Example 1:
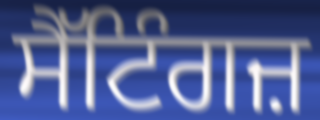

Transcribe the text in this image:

ਸੈੱਟਿੰਗਜ਼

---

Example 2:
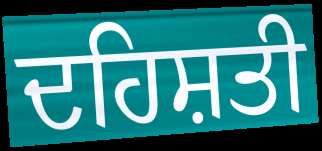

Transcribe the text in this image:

ਦਹਿਸ਼ਤੀ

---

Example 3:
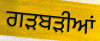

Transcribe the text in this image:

ਗੜਬੜੀਆਂ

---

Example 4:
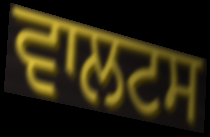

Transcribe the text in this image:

ਵਾਲਟਸ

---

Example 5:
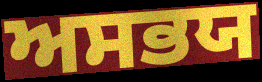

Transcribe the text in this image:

ਅਸਭਯ